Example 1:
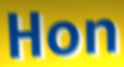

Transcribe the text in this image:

Hon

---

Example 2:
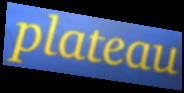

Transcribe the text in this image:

plateau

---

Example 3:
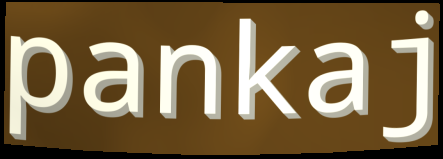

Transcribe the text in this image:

pankaj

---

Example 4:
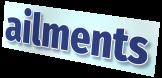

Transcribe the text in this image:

ailments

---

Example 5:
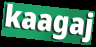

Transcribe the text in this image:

kaagaj